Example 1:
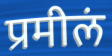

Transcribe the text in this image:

प्रमीलं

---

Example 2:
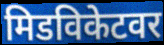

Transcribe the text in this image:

मिडविकेटवर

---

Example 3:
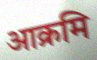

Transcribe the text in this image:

आक्रमि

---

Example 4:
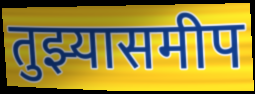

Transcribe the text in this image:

तुझ्यासमीप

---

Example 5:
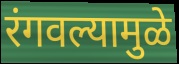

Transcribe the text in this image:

रंगवल्यामुळे